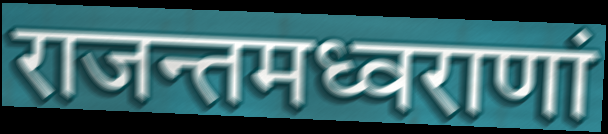
राजन्तमध्वराणां